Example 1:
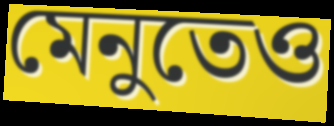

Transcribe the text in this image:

মেনুতেও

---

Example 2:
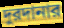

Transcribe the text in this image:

দুরদানার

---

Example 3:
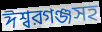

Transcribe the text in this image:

ঈশ্বরগঞ্জসহ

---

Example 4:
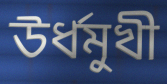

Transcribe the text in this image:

উর্ধমুখী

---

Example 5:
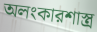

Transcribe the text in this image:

অলংকারশাস্ত্র